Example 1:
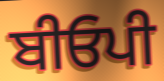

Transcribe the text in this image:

ਬੀਓਪੀ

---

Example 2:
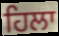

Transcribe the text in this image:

ਹਿਲਾ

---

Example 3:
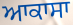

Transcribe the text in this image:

ਆਕਾਸਾ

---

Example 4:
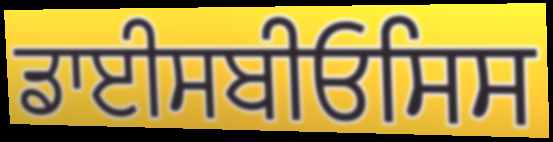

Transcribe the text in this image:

ਡਾਈਸਬੀਓਸਿਸ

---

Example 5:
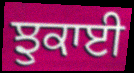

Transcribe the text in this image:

ਝੁਕਾਈ